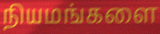
நியமங்களை